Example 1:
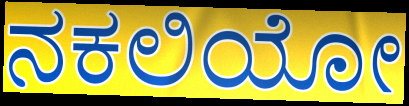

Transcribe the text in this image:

ನಕಲಿಯೋ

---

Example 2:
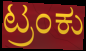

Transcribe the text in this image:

ಟ್ರಂಕು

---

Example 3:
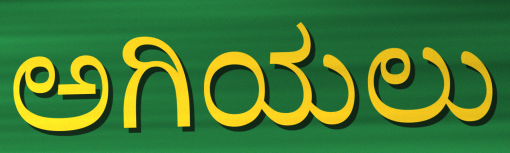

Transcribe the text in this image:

ಅಗಿಯಲು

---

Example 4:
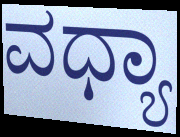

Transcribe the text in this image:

ವಧ್ಯಾ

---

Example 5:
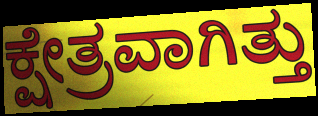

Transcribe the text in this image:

ಕ್ಷೇತ್ರವಾಗಿತ್ತು